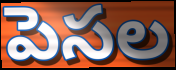
పెసల